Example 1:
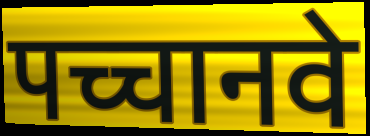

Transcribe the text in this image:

पच्चानवे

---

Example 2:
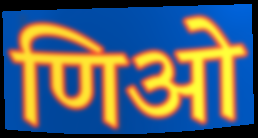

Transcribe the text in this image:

णिओ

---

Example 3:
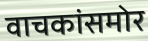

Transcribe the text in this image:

वाचकांसमोर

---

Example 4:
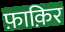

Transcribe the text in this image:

फ़ाक़िर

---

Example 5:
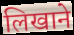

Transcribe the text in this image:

लिखाने